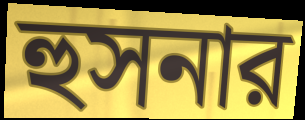
হুসনার